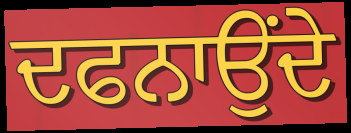
ਦਫਨਾਉਂਦੇ